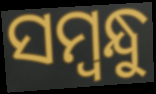
ସମ୍ବନ୍ଧୁ